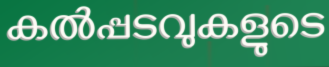
കൽപ്പടവുകളുടെ